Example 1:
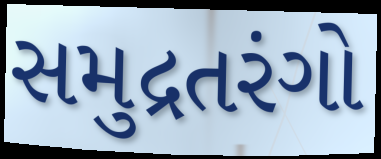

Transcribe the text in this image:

સમુદ્રતરંગો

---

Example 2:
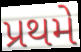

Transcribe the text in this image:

પ્રથમે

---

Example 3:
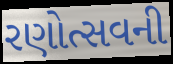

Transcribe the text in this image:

રણોત્સવની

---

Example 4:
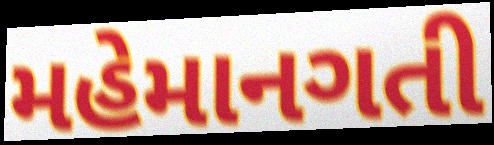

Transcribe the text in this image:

મહેમાનગતી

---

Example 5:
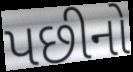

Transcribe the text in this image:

પછીનો